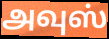
அவுஸ்